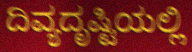
ದಿವ್ಯದೃಷ್ಟಿಯಲ್ಲಿ